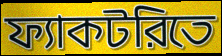
ফ্যাকটরিতে